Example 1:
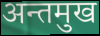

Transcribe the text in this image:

अन्तमुख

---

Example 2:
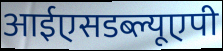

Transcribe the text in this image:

आईएसडब्ल्यूएपी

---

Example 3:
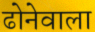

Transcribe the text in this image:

ढोनेवाला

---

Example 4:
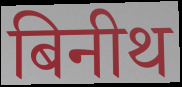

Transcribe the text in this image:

बिनीथ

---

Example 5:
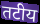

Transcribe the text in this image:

तटीय